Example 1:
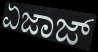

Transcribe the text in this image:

ಏಜಾಜ್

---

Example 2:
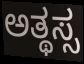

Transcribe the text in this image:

ಅತ್ಥಸ್ಸ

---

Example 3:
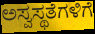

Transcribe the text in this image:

ಅಸ್ವಸ್ಥತೆಗಳಿಗೆ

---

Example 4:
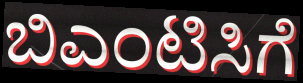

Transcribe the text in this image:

ಬಿಎಂಟಿಸಿಗೆ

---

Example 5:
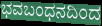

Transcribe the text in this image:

ಭವಬಂಧನದಿಂದ